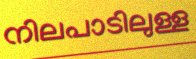
നിലപാടിലുള്ള